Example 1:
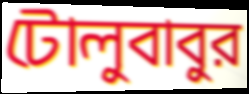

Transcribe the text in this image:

টোলুবাবুর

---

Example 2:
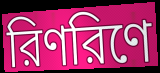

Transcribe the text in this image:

রিণরিণে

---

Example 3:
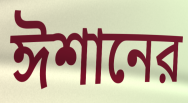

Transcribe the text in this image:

ঈশানের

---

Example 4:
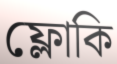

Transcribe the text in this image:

ফ্লোকি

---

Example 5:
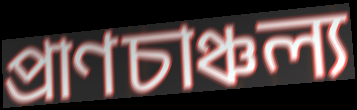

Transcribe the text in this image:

প্রাণচাঞ্চল্য